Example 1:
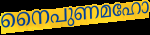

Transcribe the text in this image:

നൈപുണമഹോ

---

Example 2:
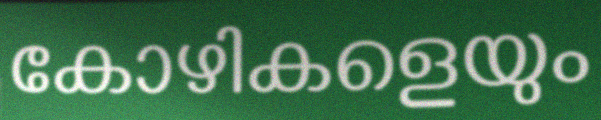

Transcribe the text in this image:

കോഴികളെയും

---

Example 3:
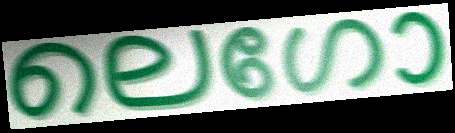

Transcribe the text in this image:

ലെഗോ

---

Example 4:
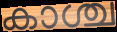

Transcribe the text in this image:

കാശ്ച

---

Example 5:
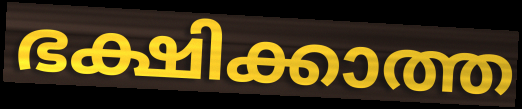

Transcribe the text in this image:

ഭക്ഷിക്കാത്ത